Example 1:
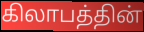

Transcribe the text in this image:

கிலாபத்தின்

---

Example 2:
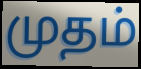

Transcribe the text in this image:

முதம்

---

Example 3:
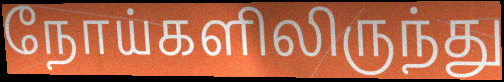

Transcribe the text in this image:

நோய்களிலிருந்து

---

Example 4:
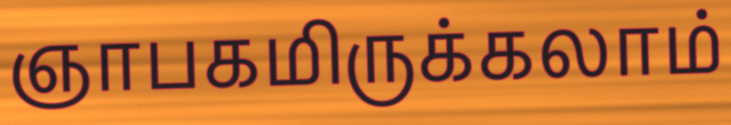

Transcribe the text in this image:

ஞாபகமிருக்கலாம்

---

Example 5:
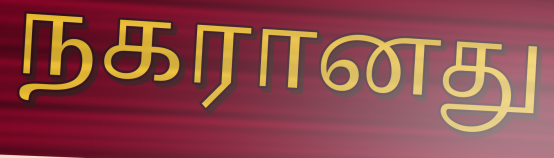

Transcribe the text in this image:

நகரானது